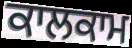
ਕਾਲਕਾਮ